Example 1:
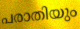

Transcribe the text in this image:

പരാതിയും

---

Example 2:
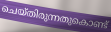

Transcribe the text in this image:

ചെയ്തിരുന്നതുകൊണ്ട്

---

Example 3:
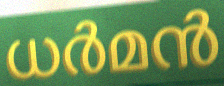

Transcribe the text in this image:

ധർമൻ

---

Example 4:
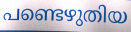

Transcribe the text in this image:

പണ്ടെഴുതിയ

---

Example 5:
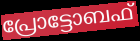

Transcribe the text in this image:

പ്രോട്ടോബഫ്